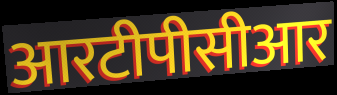
आरटीपीसीआर